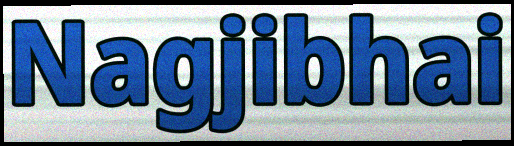
Nagjibhai